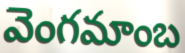
వెంగమాంబ